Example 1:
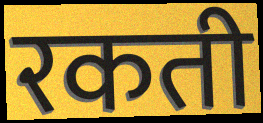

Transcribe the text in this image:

रकती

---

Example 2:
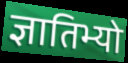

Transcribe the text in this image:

ज्ञातिभ्यो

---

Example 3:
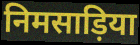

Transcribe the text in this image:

निमसाड़िया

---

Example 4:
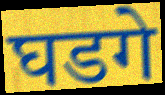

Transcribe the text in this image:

घडगे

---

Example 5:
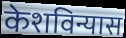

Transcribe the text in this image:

केशविन्यास